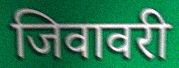
जिवावरी